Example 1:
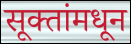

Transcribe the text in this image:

सूक्तांमधून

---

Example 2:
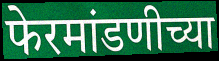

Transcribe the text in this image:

फेरमांडणीच्या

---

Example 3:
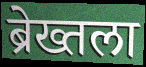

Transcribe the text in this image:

ब्रेख्तला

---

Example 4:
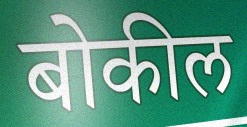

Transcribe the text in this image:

बोकील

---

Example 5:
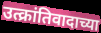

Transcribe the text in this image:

उत्क्रांतिवादाच्या